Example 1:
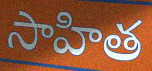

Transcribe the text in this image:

సాహిత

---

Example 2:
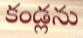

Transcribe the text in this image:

కండ్లను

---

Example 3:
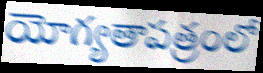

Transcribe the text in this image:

యోగ్యతాపత్రంలో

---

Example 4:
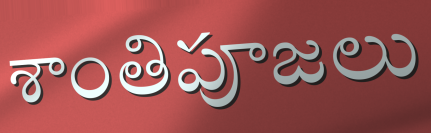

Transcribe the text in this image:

శాంతిపూజలు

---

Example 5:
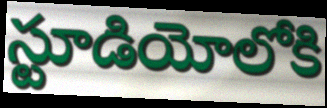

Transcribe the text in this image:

స్టూడియోలోకి